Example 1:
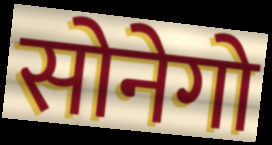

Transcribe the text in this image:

सोनेगो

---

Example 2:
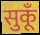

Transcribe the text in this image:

सुकूँ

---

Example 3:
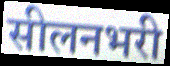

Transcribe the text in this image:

सीलनभरी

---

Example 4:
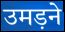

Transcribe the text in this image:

उमड़ने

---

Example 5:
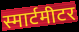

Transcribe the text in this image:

स्मार्टमीटर